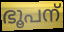
ഭൂപന്